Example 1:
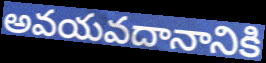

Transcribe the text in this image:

అవయవదానానికి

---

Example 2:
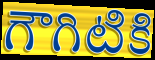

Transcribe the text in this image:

గౌగిటికి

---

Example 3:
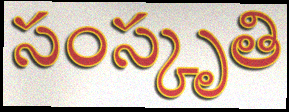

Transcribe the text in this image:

సంస్కృతి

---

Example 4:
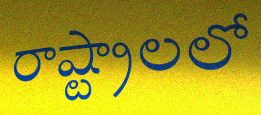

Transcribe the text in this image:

రాష్ట్రాలలో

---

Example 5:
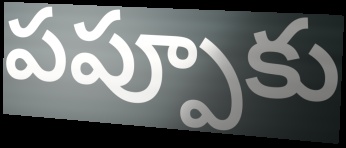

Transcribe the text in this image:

పప్పూకు